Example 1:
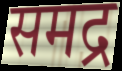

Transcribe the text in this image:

समद्र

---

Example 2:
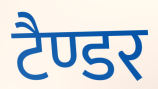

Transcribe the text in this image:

टैण्डर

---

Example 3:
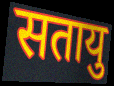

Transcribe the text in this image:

सतायु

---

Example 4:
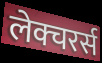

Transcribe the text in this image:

लेक्चरर्स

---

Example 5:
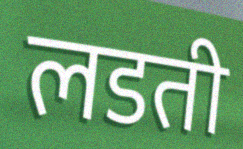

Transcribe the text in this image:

लडती